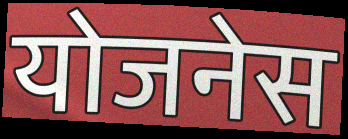
योजनेस